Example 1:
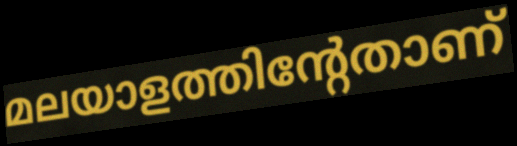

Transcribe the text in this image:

മലയാളത്തിന്റേതാണ്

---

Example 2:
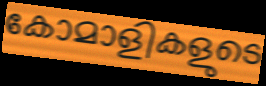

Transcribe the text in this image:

കോമാളികളുടെ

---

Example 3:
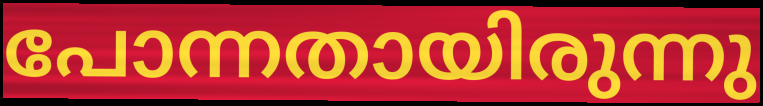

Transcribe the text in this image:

പോന്നതായിരുന്നു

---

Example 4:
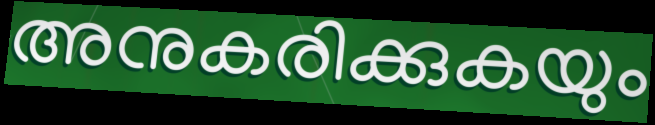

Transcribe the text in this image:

അനുകരിക്കുകയും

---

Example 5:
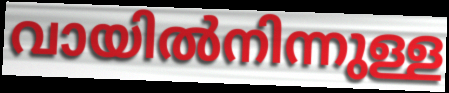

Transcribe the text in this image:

വായിൽനിന്നുള്ള